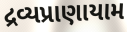
દ્રવ્યપ્રાણાયામ